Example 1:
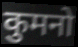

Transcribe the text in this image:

कुमनो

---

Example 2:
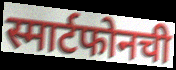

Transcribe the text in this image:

स्मार्टफोनची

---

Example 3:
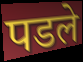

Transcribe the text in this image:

पडले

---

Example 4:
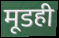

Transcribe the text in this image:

मूडही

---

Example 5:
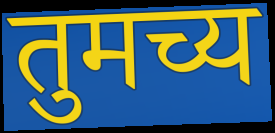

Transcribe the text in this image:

तुमच्य